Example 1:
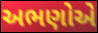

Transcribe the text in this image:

અભણોએ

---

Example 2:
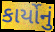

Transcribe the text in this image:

કાર્યોનું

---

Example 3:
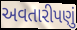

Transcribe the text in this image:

અવતારીપણું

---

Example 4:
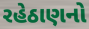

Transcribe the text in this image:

રહેઠાણનો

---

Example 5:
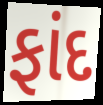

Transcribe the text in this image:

ફાંદ